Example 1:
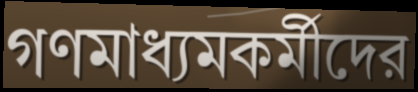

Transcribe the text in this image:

গণমাধ্যমকর্মীদের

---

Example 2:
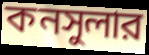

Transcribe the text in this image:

কনসুলার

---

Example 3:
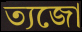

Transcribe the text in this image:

ত্যজো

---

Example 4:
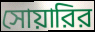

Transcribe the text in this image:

সোয়ারির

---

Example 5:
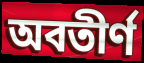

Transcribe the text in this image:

অবতীর্ণ